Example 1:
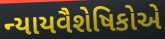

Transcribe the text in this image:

ન્યાયવૈશેષિકોએ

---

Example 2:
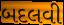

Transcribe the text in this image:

બદલવી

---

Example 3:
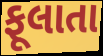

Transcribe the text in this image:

ફૂલાતા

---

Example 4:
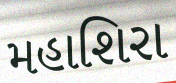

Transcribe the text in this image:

મહાશિરા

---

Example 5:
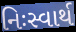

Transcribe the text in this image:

નિઃસ્વાર્થ